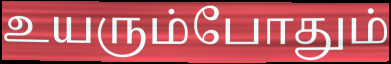
உயரும்போதும்